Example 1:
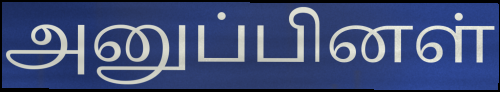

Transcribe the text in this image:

அனுப்பினள்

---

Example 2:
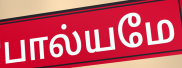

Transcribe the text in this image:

பால்யமே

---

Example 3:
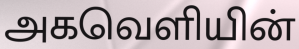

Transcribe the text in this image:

அகவெளியின்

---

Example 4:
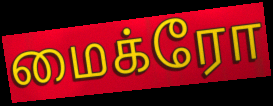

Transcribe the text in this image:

மைக்ரோ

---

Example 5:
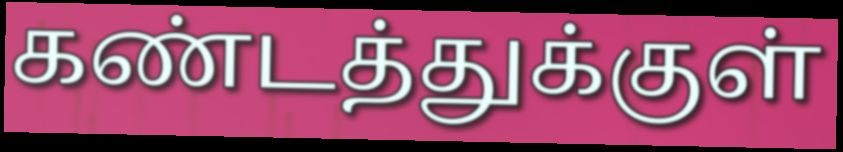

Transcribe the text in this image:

கண்டத்துக்குள்